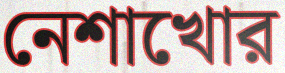
নেশাখোর